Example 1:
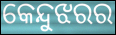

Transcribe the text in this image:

କେନ୍ଦୁଝରର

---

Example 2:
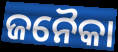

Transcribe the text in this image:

ଜନୈକା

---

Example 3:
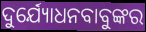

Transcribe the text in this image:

ଦୁର୍ଯ୍ୟୋଧନବାବୁଙ୍କର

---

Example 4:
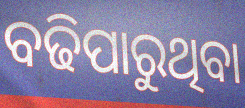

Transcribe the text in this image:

ବଢିପାରୁଥିବା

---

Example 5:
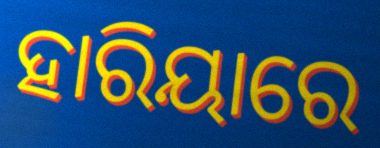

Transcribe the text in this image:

ହାରିୟାରେ